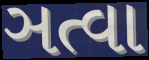
ઞત્વા